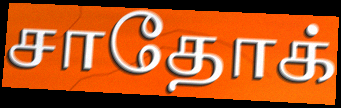
சாதோக்